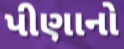
પીણાનો